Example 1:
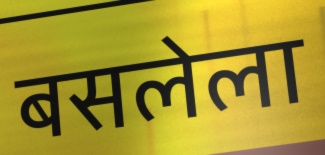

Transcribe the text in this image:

बसलेला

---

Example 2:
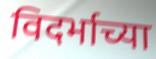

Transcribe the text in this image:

विदर्भाच्या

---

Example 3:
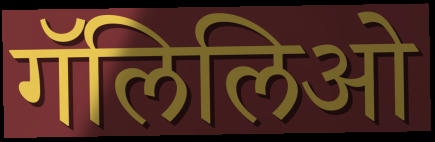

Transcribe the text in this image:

गॅलिलिओ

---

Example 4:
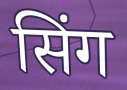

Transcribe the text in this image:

सिंग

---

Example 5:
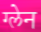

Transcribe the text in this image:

ग्लेन